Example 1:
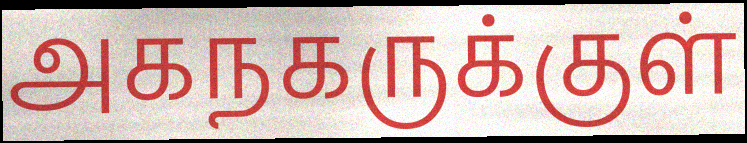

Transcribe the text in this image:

அகநகருக்குள்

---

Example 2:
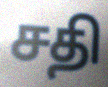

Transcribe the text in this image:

சதி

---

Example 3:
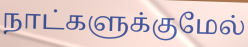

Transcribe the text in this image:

நாட்களுக்குமேல்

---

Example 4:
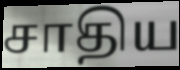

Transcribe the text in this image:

சாதிய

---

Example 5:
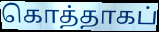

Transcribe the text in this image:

கொத்தாகப்